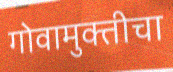
गोवामुक्तीचा